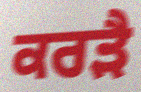
ਕਰੜੈ